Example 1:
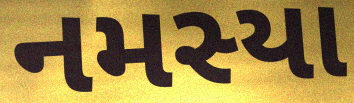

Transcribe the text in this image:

નમસ્યા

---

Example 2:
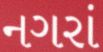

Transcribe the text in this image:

નગરાં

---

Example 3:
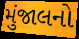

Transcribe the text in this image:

મુંજાલનો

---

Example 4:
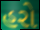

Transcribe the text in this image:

હરો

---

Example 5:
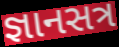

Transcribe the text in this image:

જ્ઞાનસત્ર